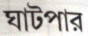
ঘাটপার